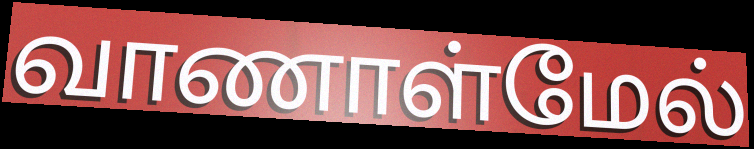
வாணாள்மேல்